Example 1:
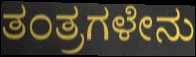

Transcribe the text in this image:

ತಂತ್ರಗಳೇನು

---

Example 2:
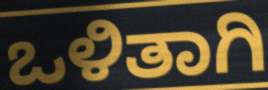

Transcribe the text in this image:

ಒಳಿತಾಗಿ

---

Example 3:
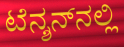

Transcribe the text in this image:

ಟೆನ್ಶನ್‌ನಲ್ಲಿ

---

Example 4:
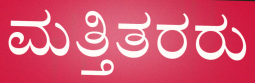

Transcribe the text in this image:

ಮತ್ತಿತರರು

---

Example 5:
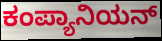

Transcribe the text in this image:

ಕಂಪ್ಯಾನಿಯನ್